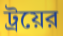
ট্রয়ের